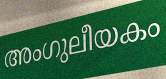
അംഗുലീയകം